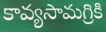
కావ్యసామగ్రికి